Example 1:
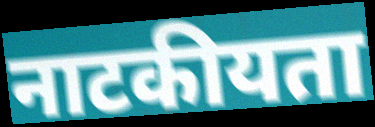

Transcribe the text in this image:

नाटकीयता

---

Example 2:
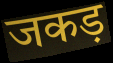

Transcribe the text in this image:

जकड़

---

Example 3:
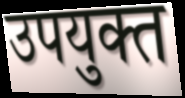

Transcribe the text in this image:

उपयुक्त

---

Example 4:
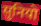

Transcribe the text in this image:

सुनियो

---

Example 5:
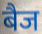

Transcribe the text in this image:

बैज